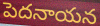
పెదనాయన